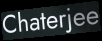
Chaterjee